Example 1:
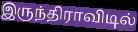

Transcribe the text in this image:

இருந்திராவிடில்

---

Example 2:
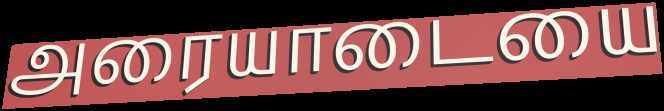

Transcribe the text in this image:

அரையாடையை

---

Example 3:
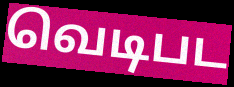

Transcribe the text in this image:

வெடிபட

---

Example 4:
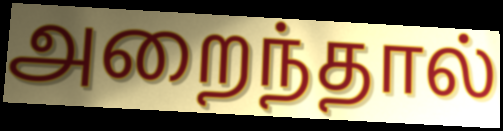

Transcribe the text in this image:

அறைந்தால்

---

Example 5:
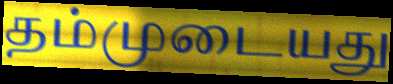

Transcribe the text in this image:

தம்முடையது